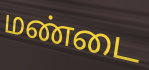
மண்டை